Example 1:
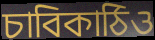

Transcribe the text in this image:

চাবিকাঠিও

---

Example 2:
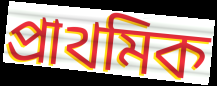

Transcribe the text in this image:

প্রাথমিক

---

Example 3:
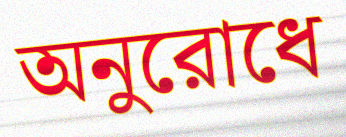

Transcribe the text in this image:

অনুরোধে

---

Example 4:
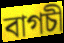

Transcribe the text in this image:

বাগচী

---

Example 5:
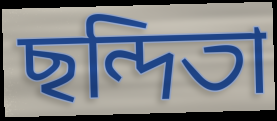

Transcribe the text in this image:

ছন্দিতা